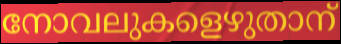
നോവലുകളെഴുതാന്